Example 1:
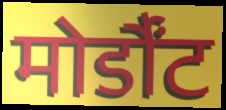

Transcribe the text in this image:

मोर्डौंट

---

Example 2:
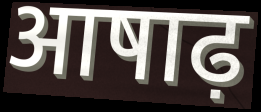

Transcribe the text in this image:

आषाढ़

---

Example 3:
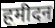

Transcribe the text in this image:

हमीदन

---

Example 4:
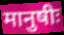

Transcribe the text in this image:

मानुषीः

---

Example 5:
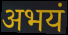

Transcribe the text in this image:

अभयं